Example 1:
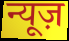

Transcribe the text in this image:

न्‍यूज़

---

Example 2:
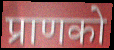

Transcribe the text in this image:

प्राणको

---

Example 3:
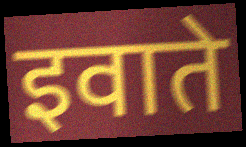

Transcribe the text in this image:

इवाते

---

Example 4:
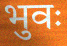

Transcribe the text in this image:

भुवः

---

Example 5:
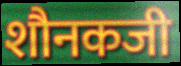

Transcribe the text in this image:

शौनकजी